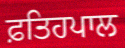
ਫ਼ਤਿਹਪਾਲ